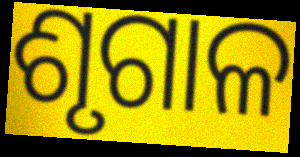
ଶୃଗାଳ